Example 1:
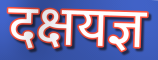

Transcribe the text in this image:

दक्षयज्ञ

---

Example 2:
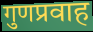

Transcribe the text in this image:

गुणप्रवाह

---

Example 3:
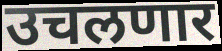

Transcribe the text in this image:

उचलणार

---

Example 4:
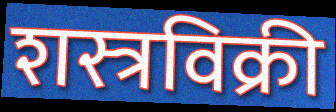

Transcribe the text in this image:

शस्त्रविक्री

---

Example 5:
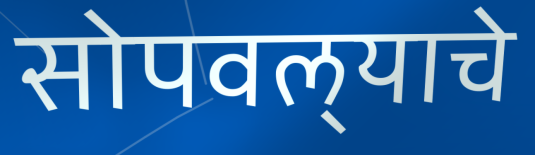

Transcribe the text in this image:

सोपवल्याचे